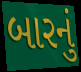
બારનું